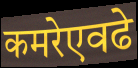
कमरेएवढे